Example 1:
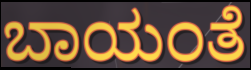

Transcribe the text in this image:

ಬಾಯಂತೆ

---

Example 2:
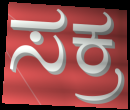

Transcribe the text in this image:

ಸಕ್ರ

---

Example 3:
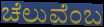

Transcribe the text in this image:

ಚೆಲುವೆಂಬ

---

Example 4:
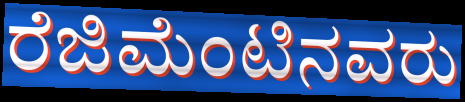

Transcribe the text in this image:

ರೆಜಿಮೆಂಟಿನವರು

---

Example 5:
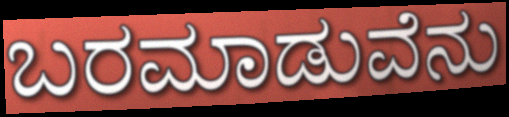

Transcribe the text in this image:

ಬರಮಾಡುವೆನು